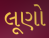
લૂણો